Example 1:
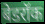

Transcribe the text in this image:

बेडरॉक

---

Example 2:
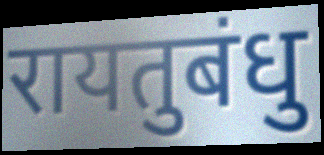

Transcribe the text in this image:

रायतुबंधु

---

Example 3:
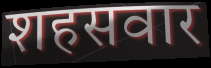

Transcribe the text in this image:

शहसवार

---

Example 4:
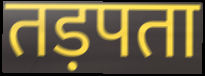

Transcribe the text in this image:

तड़पता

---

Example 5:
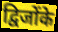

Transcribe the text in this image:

द्विजोंके